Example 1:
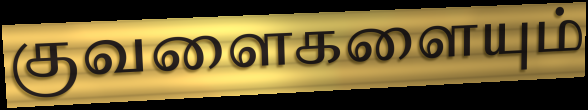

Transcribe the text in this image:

குவளைகளையும்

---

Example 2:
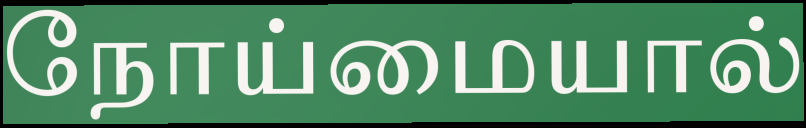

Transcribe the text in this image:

நோய்மையால்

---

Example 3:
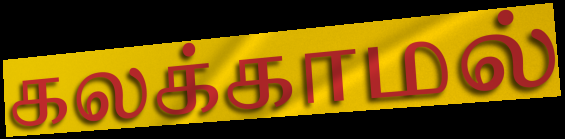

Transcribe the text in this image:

கலக்காமல்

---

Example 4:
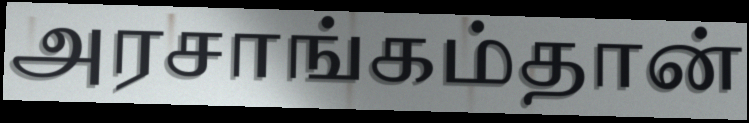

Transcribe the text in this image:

அரசாங்கம்தான்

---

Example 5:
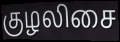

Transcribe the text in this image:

குழலிசை